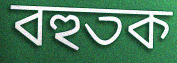
বহুতক